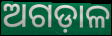
ଅଗଡ଼ାଳ